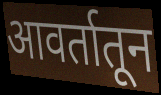
आवर्तातून